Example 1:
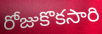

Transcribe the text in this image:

రోజుకొకసారి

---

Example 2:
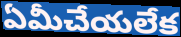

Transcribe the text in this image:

ఏమీచేయలేక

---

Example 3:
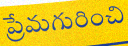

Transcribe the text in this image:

ప్రేమగురించి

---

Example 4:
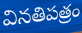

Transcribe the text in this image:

వినతిపత్రం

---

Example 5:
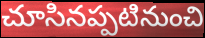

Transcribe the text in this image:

చూసినప్పటినుంచి